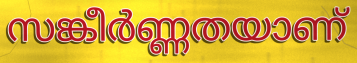
സങ്കീർണ്ണതയാണ്